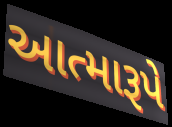
આત્મારૂપે